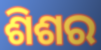
ଶିଶର